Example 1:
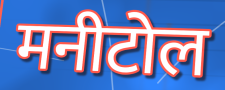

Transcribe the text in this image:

मनीटोल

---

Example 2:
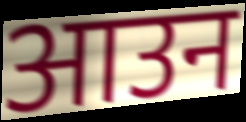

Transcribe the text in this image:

आउन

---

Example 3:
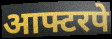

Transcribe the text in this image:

आफ्टरपे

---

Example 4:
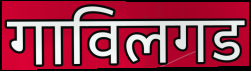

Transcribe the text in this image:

गाविलगड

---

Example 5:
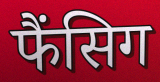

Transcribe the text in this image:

फैंसिग